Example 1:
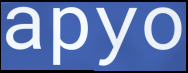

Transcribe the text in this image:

apyo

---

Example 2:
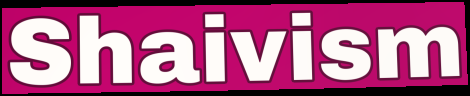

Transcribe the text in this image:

Shaivism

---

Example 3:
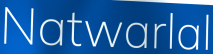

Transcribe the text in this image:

Natwarlal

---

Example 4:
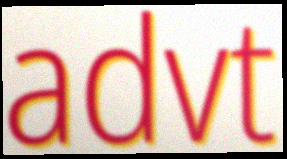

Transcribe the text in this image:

advt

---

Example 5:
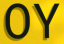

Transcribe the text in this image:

OY